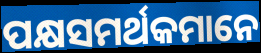
ପକ୍ଷସମର୍ଥକମାନେ